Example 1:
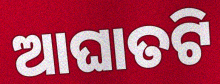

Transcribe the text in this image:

ଆଘାତଟି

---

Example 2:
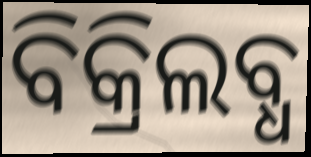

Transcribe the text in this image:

ବିକ୍ରିଲବ୍ଧ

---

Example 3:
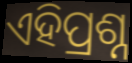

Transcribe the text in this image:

ଏହିପ୍ରଶ୍ନ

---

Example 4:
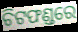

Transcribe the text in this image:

ଚିଟଫଣ୍ଡରେ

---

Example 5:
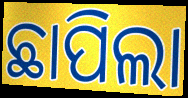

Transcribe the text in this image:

ଛାପିଲା